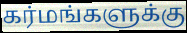
கர்மங்களுக்கு